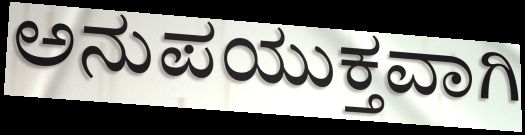
ಅನುಪಯುಕ್ತವಾಗಿ